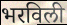
भरविली